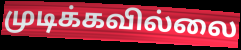
முடிக்கவில்லை